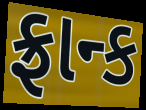
ફ્રાન્ક